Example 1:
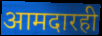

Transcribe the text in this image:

आमदारही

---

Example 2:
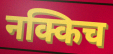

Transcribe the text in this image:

नक्किच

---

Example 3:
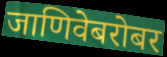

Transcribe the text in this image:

जाणिवेबरोबर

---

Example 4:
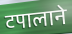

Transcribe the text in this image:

टपालाने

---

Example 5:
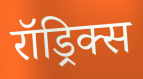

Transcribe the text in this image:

रॉड्रिक्स